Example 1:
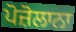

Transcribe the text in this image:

ਪੋਜ਼ੋਲਾਨਾ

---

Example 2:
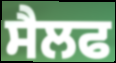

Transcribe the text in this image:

ਸੈਲਫ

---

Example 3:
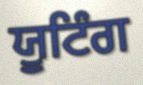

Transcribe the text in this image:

ਯੂਟਿੰਗ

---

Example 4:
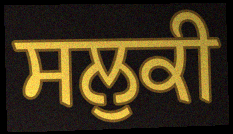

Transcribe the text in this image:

ਸਲੁਕੀ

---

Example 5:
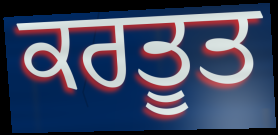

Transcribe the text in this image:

ਕਰਤੂਤ